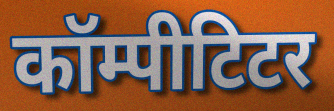
कॉम्पीटिटर